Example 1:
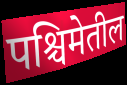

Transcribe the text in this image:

पश्चिमेतील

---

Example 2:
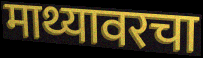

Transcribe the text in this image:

माथ्यावरचा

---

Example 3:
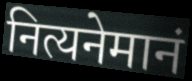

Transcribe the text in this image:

नित्यनेमानं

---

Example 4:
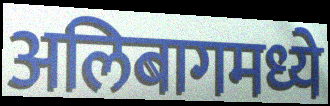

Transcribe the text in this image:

अलिबागमध्ये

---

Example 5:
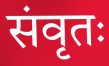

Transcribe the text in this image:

संवृतः